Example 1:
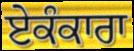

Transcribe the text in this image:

ਏਕੰਕਾਰਾ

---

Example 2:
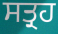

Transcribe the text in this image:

ਸਤ੍ਰਹ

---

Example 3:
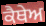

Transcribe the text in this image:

ਕੈਥੇਅ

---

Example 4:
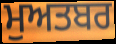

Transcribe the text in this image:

ਮੁਅਤਬਰ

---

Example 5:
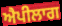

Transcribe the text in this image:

ਐਪੀਲਾਗ